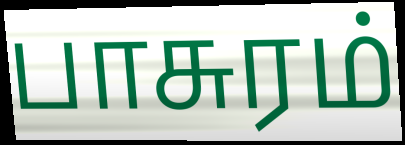
பாசுரம்